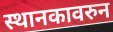
स्थानकावरुन